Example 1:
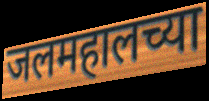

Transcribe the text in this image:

जलमहालच्या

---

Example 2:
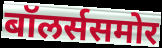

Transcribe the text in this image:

बॉलर्ससमोर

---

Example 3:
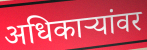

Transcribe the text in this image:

अधिकाऱ्यांवर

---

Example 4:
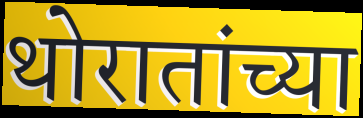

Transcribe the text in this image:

थोरातांच्या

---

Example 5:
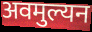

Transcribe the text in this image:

अवमुल्यन